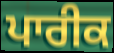
ਪਾਰੀਕ